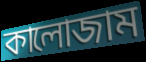
কালোজাম